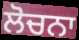
ਲੋਚਨਾ